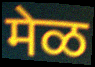
मेळ